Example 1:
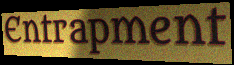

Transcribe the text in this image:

Entrapment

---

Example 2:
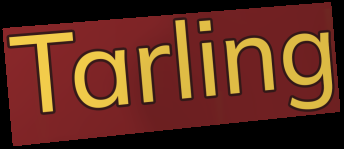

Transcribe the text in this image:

Tarling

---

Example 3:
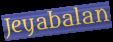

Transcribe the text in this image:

Jeyabalan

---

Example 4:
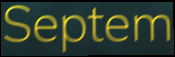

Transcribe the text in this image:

Septem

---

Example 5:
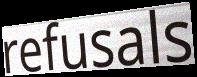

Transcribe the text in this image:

refusals